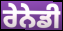
ਰੇਨੇਡੀ